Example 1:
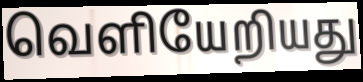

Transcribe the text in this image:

வெளியேறியது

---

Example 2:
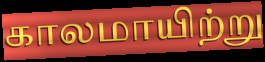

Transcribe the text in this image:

காலமாயிற்று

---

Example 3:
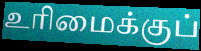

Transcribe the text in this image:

உரிமைக்குப்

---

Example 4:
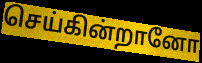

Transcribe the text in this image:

செய்கின்றானோ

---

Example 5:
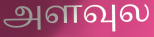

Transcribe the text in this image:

அளவுல